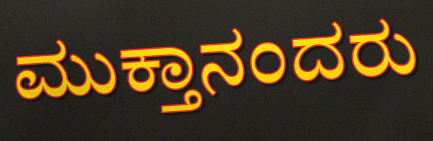
ಮುಕ್ತಾನಂದರು